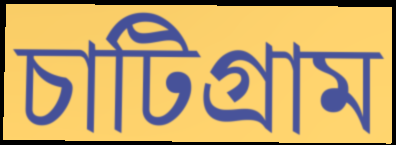
চাটিগ্রাম